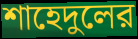
শাহেদুলের